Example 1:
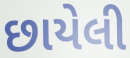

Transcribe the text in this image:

છાયેલી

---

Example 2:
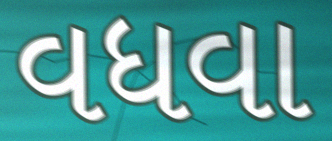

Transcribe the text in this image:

વધવા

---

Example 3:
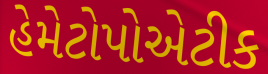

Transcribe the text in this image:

હેમેટોપોએટીક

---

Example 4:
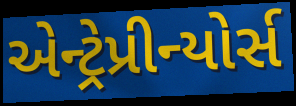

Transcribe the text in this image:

એન્ટ્રેપ્રીન્યોર્સ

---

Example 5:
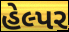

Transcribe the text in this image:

હેલ્પર